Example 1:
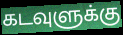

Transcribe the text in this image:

கடவுளுக்கு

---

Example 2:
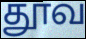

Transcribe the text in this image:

தூவ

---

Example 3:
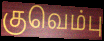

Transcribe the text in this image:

குவெம்பு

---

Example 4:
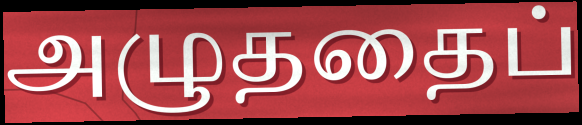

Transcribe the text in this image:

அழுததைப்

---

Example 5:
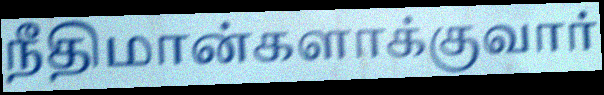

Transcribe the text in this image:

நீதிமான்களாக்குவார்